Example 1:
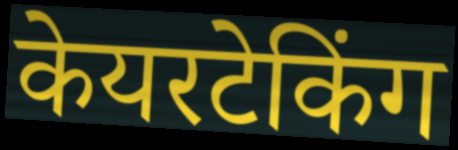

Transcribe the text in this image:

केयरटेकिंग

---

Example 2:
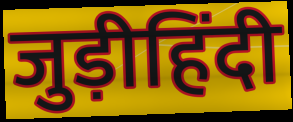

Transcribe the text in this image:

जुड़ीहिंदी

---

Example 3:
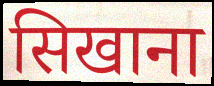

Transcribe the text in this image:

सिखाना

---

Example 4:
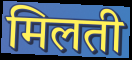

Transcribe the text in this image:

मिलती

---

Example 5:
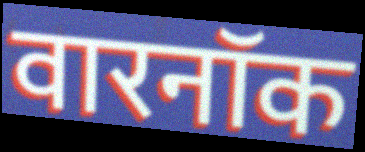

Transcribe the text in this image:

वारनॉक